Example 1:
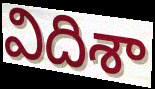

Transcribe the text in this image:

విదిశా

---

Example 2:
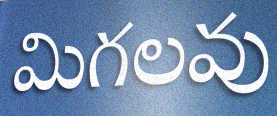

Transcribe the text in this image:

మిగలవు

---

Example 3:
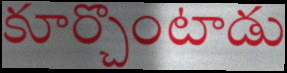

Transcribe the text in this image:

కూర్చొంటాడు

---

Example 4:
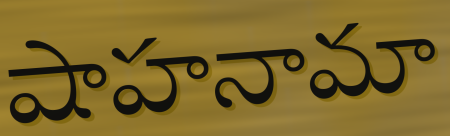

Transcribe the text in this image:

షాహనామా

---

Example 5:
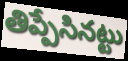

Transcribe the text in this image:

తిప్పేసినట్టు